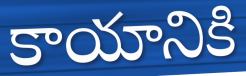
కాయానికి